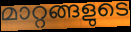
മാറ്റങ്ങളുടെ